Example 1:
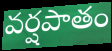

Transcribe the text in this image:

వర్షపాతం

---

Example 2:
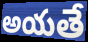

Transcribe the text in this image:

అయతే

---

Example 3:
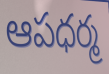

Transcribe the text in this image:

ఆపధర్మ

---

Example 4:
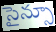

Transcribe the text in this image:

సైన్సూ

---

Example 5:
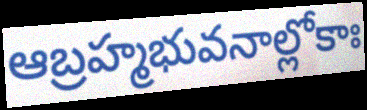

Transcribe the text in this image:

ఆబ్రహ్మభువనాల్లోకాః